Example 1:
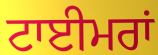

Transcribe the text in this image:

ਟਾਈਮਰਾਂ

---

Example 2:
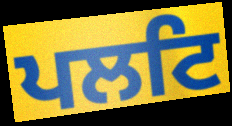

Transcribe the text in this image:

ਪਲਟਿ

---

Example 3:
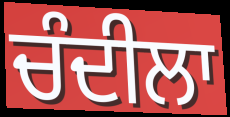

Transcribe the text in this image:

ਚੰਦੀਲਾ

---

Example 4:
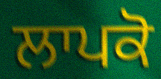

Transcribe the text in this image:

ਲਾਪਕੋ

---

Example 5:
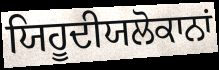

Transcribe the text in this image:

ਯਿਹੂਦੀਯਲੋਕਾਨਾਂ